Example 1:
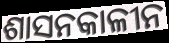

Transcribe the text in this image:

ଶାସନକାଳୀନ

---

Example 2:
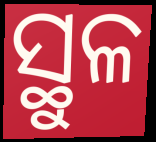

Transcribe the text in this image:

ସ୍ଥୁଳ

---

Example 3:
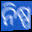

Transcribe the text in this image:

ନିଷ୍ପ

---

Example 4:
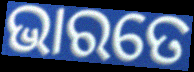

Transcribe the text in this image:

ଭାରତେ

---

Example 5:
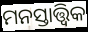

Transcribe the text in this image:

ମନସ୍ତାତ୍ତ୍ଵିକ